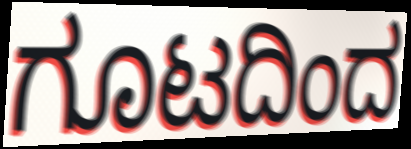
ಗೂಟದಿಂದ